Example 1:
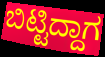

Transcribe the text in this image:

ಬಿಟ್ಟಿದ್ದಾಗ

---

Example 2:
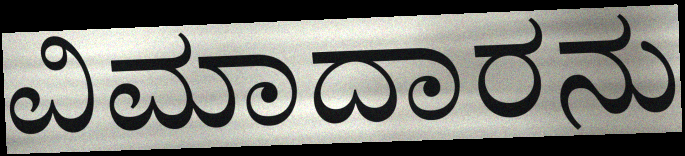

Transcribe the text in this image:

ವಿಮಾದಾರನು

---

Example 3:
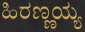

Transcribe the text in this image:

ಹಿರಣ್ಣಯ್ಯ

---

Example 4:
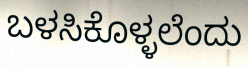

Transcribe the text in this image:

ಬಳಸಿಕೊಳ್ಳಲೆಂದು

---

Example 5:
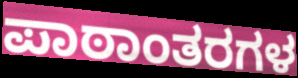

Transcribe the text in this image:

ಪಾಠಾಂತರಗಳ